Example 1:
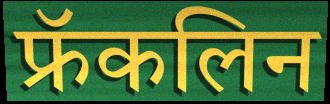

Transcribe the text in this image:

फ्रॅकलिन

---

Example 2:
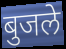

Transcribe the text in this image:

बुजले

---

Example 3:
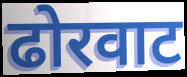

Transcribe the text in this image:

ढोरवाट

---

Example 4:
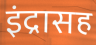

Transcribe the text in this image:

इंद्रासह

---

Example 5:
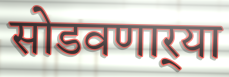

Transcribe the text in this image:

सोडवणार्या